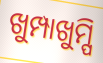
ଖୁମ୍ପାଖୁମ୍ପି